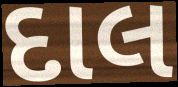
દાલ